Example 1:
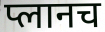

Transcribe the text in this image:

प्लानच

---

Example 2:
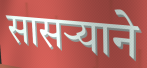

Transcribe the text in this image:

सासऱ्याने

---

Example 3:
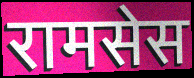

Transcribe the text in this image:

रामसेस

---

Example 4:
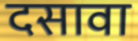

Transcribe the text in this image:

दसावा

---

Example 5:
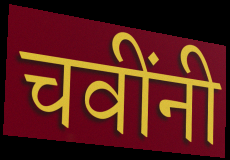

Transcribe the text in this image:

चवींनी